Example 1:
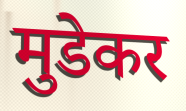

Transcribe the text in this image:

मुडेकर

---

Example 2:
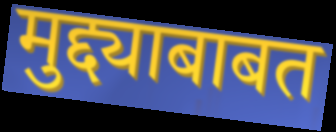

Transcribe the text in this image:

मुद्द्याबाबत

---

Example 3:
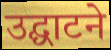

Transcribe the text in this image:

उद्घाटने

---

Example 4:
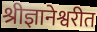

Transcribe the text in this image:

श्रीज्ञानेश्वरीत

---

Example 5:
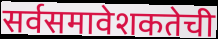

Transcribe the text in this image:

सर्वसमावेशकतेची